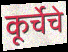
कूर्चेचे